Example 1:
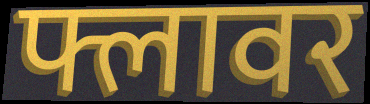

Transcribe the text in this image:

फ्लावर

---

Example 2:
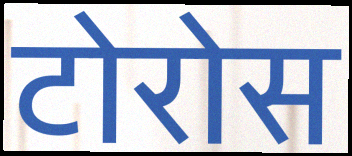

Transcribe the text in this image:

टोरोस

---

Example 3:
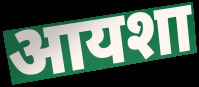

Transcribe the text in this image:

आयशा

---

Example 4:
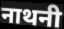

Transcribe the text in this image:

नाथनी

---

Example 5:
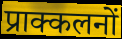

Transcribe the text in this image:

प्राक्कलनों